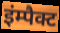
इंम्पैक्ट